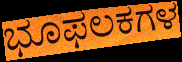
ಭೂಫಲಕಗಳ